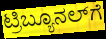
ಟ್ರಿಬ್ಯೂನಲ್‌ಗೆ